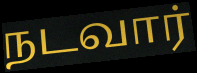
நடவார்